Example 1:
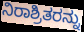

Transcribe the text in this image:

ನಿರಾಶ್ರಿತರನ್ನು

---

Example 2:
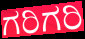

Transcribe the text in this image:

ಗರಿಗರಿ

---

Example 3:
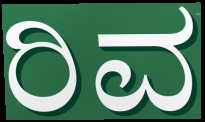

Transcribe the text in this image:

ರಿವ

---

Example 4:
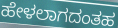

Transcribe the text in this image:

ಹೇಳಲಾಗದಂತಹ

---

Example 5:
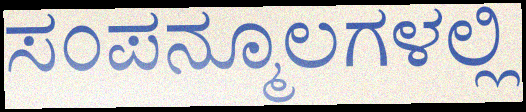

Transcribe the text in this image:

ಸಂಪನ್ಮೂಲಗಳಲ್ಲಿ